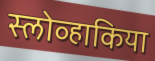
स्लोव्हाकिया